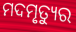
ମଦମୃତ୍ୟୁର